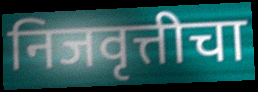
निजवृत्तीचा